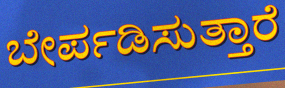
ಬೇರ್ಪಡಿಸುತ್ತಾರೆ